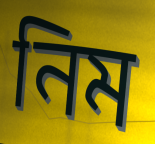
নিম